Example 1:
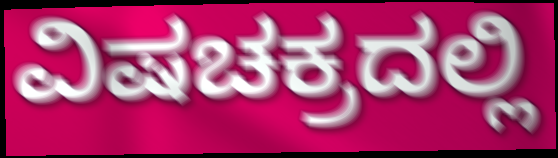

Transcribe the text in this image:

ವಿಷಚಕ್ರದಲ್ಲಿ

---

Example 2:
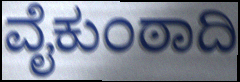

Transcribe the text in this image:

ವೈಕುಂಠಾದಿ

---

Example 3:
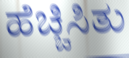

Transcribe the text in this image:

ಹೆಚ್ಚಿಸಿತು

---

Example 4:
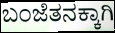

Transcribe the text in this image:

ಬಂಜೆತನಕ್ಕಾಗಿ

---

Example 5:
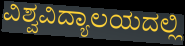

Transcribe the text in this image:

ವಿಶ್ವವಿದ್ಯಾಲಯದಲ್ಲಿ